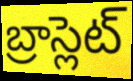
బ్రాస్లెట్